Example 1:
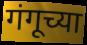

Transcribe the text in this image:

गंगूच्या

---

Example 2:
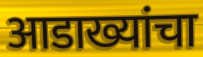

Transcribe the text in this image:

आडाख्यांचा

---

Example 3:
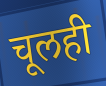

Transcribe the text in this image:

चूलही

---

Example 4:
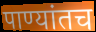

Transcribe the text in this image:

पाण्यांतच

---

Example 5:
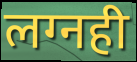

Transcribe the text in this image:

लग्नही